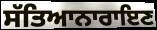
ਸੱਤਿਆਨਾਰਾਇਣ